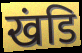
खंडि